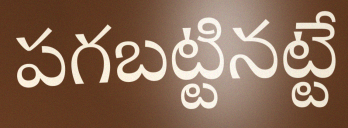
పగబట్టినట్టే